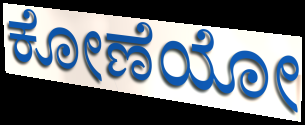
ಕೋಣೆಯೋ